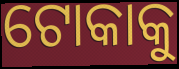
ଟୋକାକୁ